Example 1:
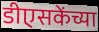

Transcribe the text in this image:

डीएसकेंच्या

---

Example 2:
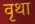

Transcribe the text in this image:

वृथा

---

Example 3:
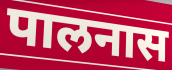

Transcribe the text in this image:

पालनास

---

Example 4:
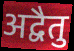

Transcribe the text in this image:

अद्वैतु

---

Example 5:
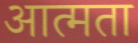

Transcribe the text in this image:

आत्मता